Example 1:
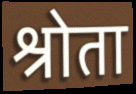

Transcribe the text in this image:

श्रोता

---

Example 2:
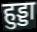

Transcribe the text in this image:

हुड्डा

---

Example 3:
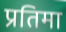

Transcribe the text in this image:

प्रतिमा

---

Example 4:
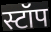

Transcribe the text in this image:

स्टॉप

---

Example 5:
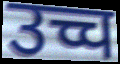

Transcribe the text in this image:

उच्च